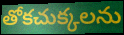
తోకచుక్కలను